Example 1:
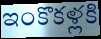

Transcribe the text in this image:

ఇంకొకళ్లకి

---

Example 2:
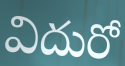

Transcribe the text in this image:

విదురో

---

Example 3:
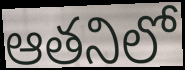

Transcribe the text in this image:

ఆతనిలో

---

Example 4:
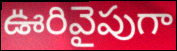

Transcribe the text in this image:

ఊరివైపుగా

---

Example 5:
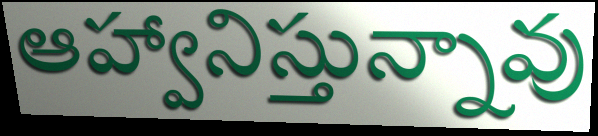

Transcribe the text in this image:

ఆహ్వానిస్తున్నావు